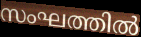
സംഘത്തിൽ